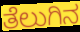
ತೆಲುಗಿನ